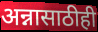
अन्नासाठीही